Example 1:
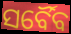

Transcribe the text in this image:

ସର୍ବୈବ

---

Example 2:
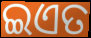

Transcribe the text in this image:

ଇଏତ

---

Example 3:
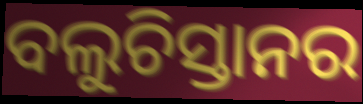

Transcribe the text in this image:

ବଲୁଚିସ୍ତାନର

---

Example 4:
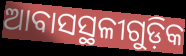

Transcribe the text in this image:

ଆବାସସ୍ଥଳୀଗୁଡ଼ିକ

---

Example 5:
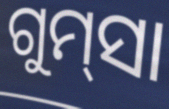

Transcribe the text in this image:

ଗୁମ୍‌ସା